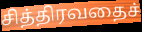
சித்திரவதைச்